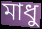
মাধু